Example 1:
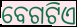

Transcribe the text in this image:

ବେଗଟିଏ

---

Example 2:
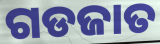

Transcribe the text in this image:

ଗଡଜାତ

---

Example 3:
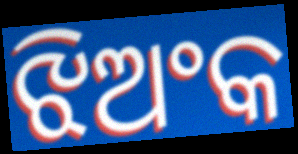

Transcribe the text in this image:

ଝିଅଂକ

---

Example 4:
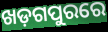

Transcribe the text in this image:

ଖଡ଼ଗପୁରରେ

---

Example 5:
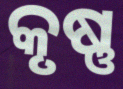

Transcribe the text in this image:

କୃଷ୍ଣ